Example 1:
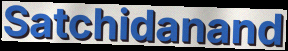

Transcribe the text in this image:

Satchidanand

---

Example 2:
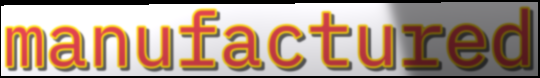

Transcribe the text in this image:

manufactured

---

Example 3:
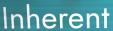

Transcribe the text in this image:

Inherent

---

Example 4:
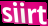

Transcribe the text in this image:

siirt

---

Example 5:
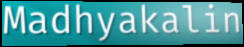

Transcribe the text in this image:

Madhyakalin